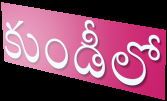
కుండీలో